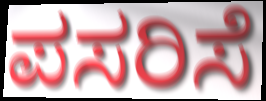
ಪಸರಿಸೆ